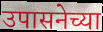
उपासनेच्या